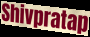
Shivpratap